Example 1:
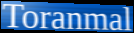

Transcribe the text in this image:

Toranmal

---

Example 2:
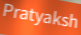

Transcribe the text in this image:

Pratyaksh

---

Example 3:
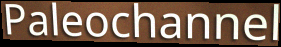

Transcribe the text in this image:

Paleochannel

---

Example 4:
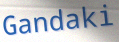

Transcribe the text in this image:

Gandaki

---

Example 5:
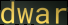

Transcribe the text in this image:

dwar